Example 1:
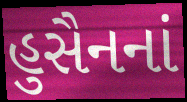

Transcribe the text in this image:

હુસૈનનાં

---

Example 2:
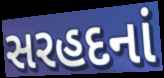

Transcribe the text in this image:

સરહદનાં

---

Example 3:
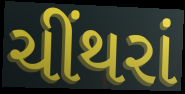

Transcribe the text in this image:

ચીંથરાં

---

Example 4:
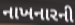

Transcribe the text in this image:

નાખનારની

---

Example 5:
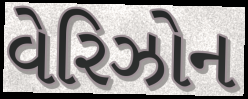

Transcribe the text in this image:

વેરિઝોન